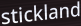
stickland